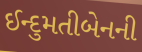
ઈન્દુમતીબેનની